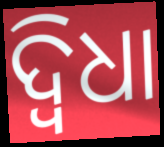
ଦ୍ବିଧା